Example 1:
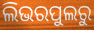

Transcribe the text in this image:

ଲିଭରପୁଲରୁ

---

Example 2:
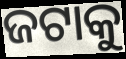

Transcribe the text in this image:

ଜଟାକୁ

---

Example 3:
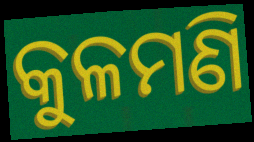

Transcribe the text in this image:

କୁଳମଣି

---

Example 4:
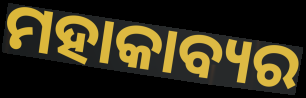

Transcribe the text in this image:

ମହାକାବ୍ୟର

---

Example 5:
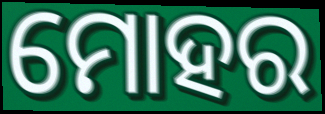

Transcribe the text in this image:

ମୋହର